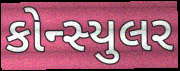
કોન્સ્યુલર